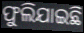
ଫୁଲିଯାଇଛି